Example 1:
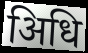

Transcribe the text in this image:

अिधि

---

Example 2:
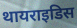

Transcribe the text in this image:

थायराइडिस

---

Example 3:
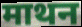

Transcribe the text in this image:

माथन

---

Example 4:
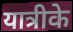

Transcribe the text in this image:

यात्रीके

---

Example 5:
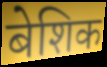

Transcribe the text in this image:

बेशिक